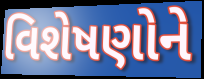
વિશેષણોને